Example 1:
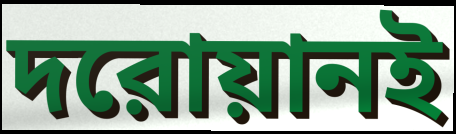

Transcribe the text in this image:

দরোয়ানই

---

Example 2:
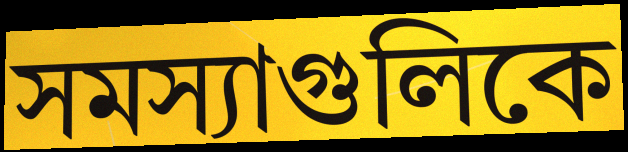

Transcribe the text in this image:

সমস্যাগুলিকে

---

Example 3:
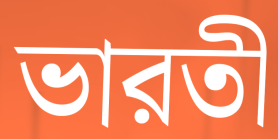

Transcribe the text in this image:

ভারতী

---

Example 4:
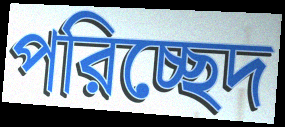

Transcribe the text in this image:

পরিচ্ছেদ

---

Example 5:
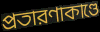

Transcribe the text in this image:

প্রতারণাকাণ্ডে